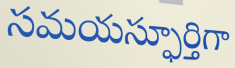
సమయస్ఫూర్తిగా